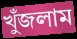
খুঁজলাম